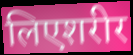
लिएशरीर